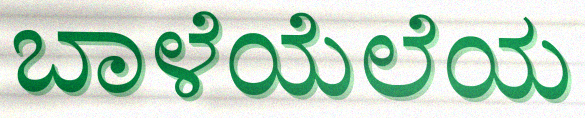
ಬಾಳೆಯೆಲೆಯ